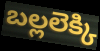
బల్లలెక్కి